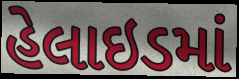
હેલાઇડમાં